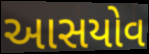
આસયોવ